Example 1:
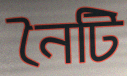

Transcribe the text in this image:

নৈটি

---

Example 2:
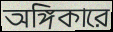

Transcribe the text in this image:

অঙ্গিকারে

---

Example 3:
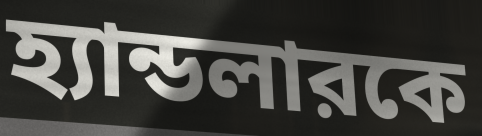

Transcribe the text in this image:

হ্যান্ডলারকে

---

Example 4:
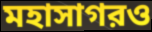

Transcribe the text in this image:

মহাসাগরও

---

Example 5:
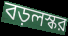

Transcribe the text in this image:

বড়লস্কর